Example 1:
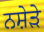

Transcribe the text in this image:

ਨਸ਼ੇੜੇ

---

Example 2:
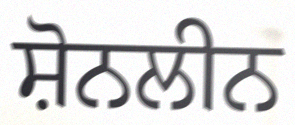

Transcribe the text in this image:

ਸ਼ੋਨਲੀਨ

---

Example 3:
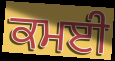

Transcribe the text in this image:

ਕਮਈ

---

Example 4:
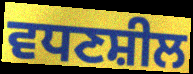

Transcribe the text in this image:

ਵਧਣਸ਼ੀਲ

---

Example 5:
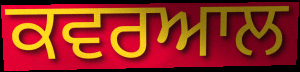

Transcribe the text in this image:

ਕਵਰਆਲ